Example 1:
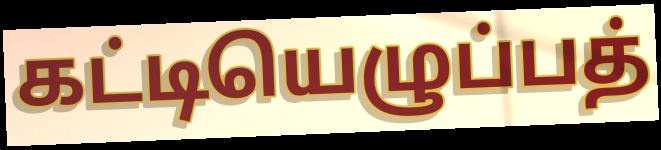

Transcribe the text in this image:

கட்டியெழுப்பத்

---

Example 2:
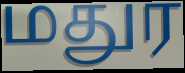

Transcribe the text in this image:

மதுர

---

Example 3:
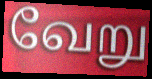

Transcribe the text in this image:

வேறு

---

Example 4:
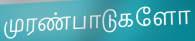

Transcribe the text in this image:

முரண்பாடுகளோ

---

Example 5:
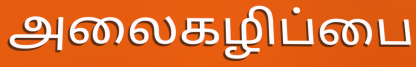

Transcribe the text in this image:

அலைகழிப்பை